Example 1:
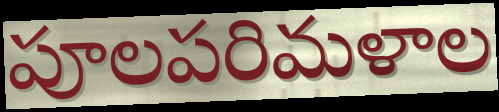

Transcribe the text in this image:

పూలపరిమళాల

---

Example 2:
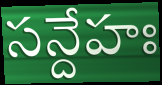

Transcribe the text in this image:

సన్దేహః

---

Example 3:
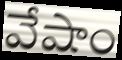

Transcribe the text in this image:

వేషాం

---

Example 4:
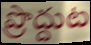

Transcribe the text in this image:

ప్రొద్దుట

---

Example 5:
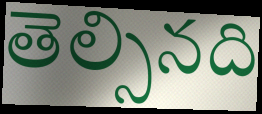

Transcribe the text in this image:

తెల్సినది